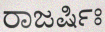
ರಾಜರ್ಷಿಃ